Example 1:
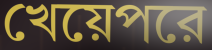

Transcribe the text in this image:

খেয়েপরে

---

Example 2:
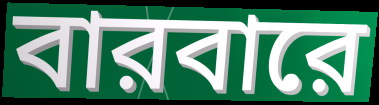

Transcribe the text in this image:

বারবারে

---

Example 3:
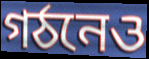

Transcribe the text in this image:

গঠনেও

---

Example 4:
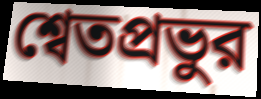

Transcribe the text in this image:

শ্বেতপ্রভুর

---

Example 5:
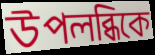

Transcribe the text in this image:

উপলব্ধিকে